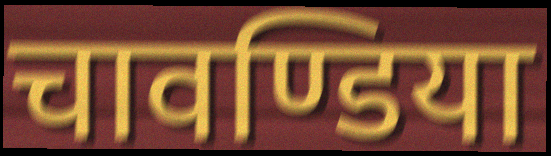
चावण्डिया